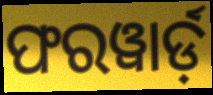
ଫରୱାର୍ଡ଼